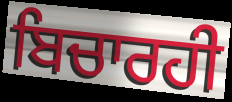
ਬਿਚਾਰਹੀ